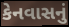
કેનવાસનું